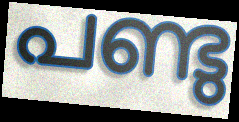
പണ്ടു